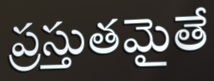
ప్రస్తుతమైతే